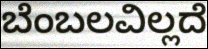
ಬೆಂಬಲವಿಲ್ಲದೆ